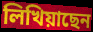
লিখিয়াছেন